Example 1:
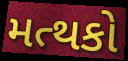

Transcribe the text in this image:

મત્થકો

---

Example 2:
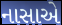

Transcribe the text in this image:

નાસાએ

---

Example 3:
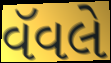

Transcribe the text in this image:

વૅવલે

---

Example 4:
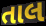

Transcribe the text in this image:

તાલ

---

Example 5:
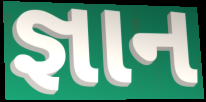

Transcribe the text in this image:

જ્ઞાન